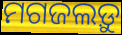
ମଗଜଲଡ଼ୁ